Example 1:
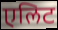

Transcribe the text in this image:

एलिट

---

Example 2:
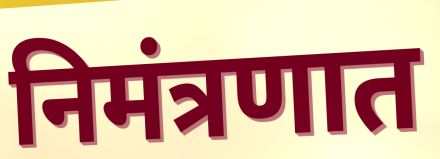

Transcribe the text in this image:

निमंत्रणात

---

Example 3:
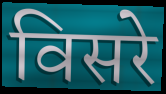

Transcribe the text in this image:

विसरे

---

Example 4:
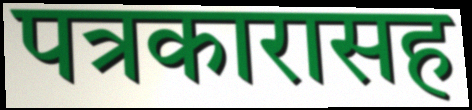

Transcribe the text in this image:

पत्रकारासह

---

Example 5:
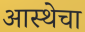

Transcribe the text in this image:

आस्थेचा